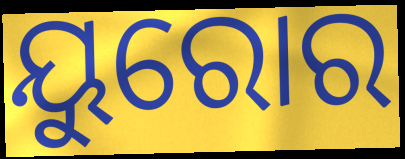
ୟୁରୋର